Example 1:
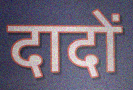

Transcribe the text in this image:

दादों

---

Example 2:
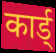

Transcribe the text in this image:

कार्ड्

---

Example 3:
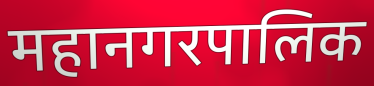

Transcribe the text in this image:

महानगरपालिक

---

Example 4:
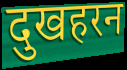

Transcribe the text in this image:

दुखहरन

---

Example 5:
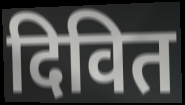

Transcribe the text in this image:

दिवित